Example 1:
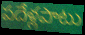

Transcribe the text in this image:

పదేళ్లపాటు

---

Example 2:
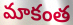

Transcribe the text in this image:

మాకంత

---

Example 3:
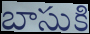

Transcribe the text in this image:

బాసుకి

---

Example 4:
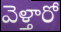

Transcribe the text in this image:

వెళ్తారో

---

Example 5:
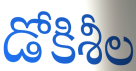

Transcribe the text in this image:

డోకిశీల